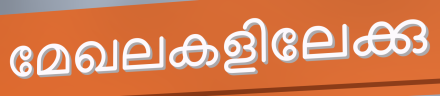
മേഖലകളിലേക്കു